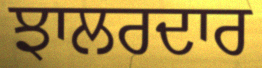
ਝਾਲਰਦਾਰ